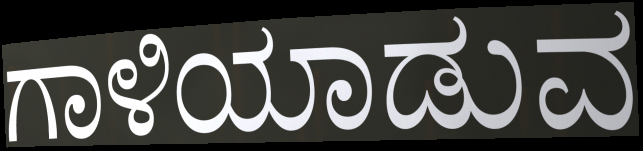
ಗಾಳಿಯಾಡುವ